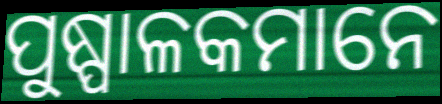
ପୁଷ୍ପାଳକମାନେ